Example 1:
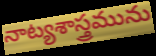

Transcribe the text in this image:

నాట్యశాస్త్రమును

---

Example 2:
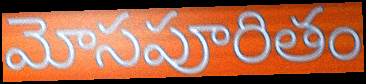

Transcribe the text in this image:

మోసపూరితం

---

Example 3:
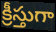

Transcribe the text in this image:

క్రీస్తుగా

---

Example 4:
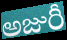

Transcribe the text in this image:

అజురీ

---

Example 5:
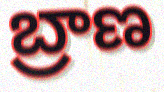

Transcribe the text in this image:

బ్రాణ